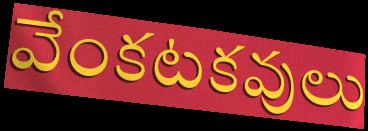
వేంకటకవులు